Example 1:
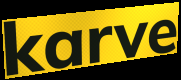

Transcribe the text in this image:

karve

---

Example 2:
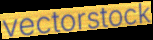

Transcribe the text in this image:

vectorstock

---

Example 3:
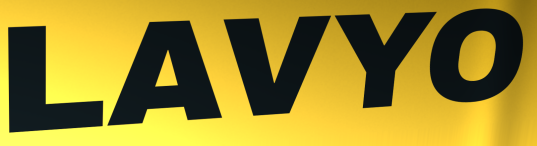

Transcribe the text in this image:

LAVYO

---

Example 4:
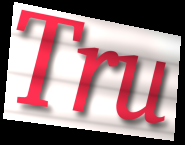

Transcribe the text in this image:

Tru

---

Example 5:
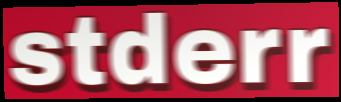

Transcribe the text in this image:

stderr